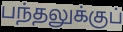
பந்தலுக்குப்